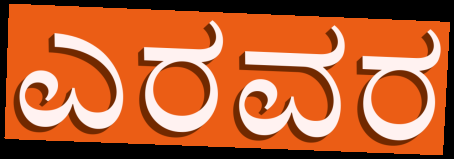
ಎರವರ